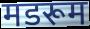
मडरूम